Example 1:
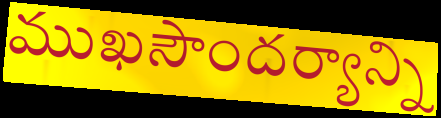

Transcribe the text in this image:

ముఖసౌందర్యాన్ని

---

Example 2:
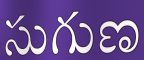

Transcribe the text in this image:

సుగుణ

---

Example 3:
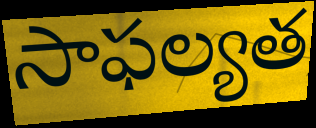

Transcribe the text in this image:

సాఫల్యత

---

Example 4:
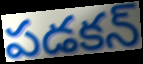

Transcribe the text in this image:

పడకన్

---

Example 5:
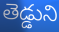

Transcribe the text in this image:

తెడ్డుని